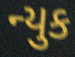
ન્યુક